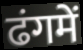
ढंगमें